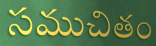
సముచితం